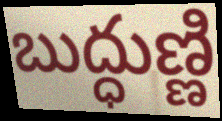
బుద్ధుణ్ణి